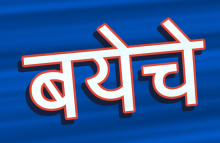
बयेचे